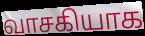
வாசகியாக